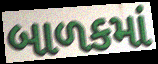
બાળકમાં